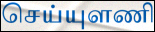
செய்யுளணி